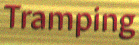
Tramping